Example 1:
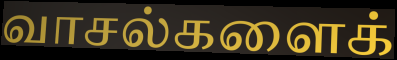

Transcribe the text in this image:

வாசல்களைக்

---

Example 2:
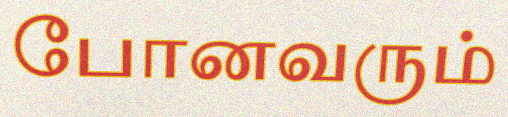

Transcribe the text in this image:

போனவரும்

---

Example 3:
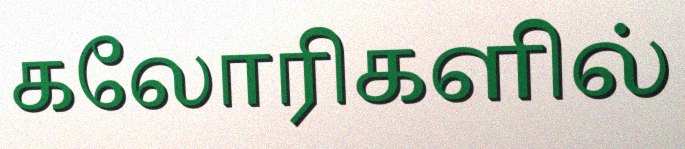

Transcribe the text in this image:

கலோரிகளில்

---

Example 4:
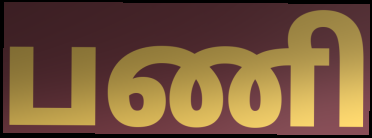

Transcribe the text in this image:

பணி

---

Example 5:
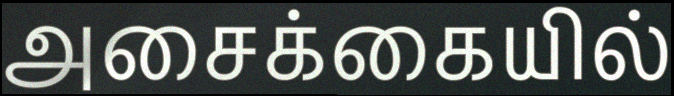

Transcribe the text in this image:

அசைக்கையில்